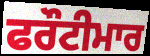
ਫਰੌਟੀਮਾਰ